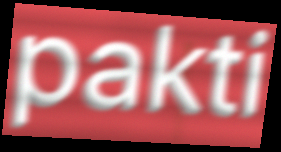
pakti